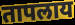
तापलाय